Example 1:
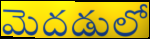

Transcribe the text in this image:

మెదడులో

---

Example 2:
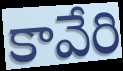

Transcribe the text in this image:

కావేరి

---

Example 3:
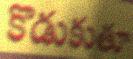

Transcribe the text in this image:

కొడుకుతూ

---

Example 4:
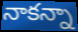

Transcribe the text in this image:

నాకన్నా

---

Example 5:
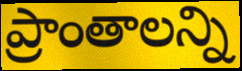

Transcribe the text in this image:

ప్రాంతాలన్ని